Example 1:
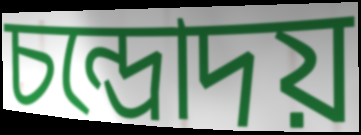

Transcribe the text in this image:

চন্দ্রোদয়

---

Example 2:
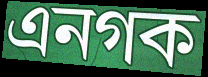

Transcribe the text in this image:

এনগক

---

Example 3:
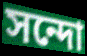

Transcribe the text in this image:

সন্দো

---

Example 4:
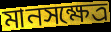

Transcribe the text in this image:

মানসক্ষেত্র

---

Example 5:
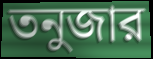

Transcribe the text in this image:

তনুজার